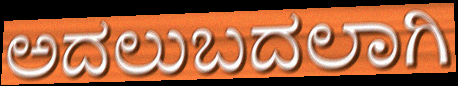
ಅದಲುಬದಲಾಗಿ